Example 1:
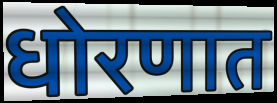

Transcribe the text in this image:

धोरणात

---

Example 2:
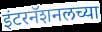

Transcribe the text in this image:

इंटरनॅशनलच्या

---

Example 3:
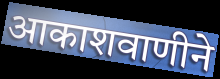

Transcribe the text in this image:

आकाशवाणीने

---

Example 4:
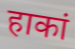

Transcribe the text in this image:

हाकां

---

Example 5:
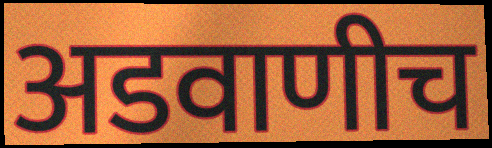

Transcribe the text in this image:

अडवाणीच